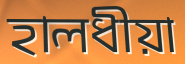
হালধীয়া